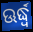
ଊର୍ଦ୍ଧ୍ୱ